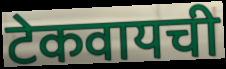
टेकवायची